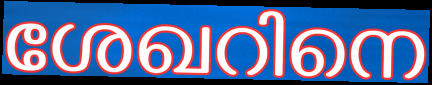
ശേഖറിനെ